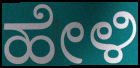
ಹೇಳಿ